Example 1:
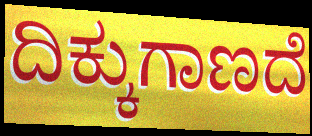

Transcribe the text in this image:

ದಿಕ್ಕುಗಾಣದೆ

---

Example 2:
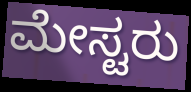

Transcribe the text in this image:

ಮೇಸ್ಟರು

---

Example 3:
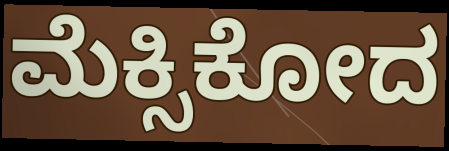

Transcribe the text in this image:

ಮೆಕ್ಸಿಕೋದ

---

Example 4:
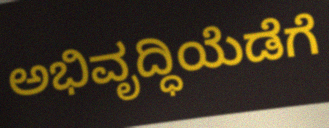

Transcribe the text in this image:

ಅಭಿವೃದ್ಧಿಯೆಡೆಗೆ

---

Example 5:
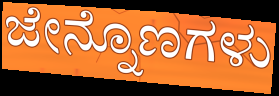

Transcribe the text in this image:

ಜೇನ್ನೊಣಗಳು